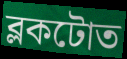
ব্লকটোত